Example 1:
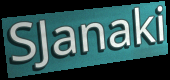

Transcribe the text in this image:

SJanaki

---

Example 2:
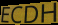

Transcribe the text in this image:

ECDH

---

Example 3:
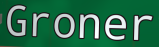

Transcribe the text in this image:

Groner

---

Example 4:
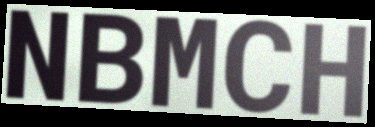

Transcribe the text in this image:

NBMCH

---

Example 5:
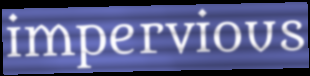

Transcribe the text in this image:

impervious